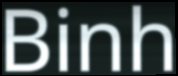
Binh